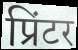
प्रिंटर